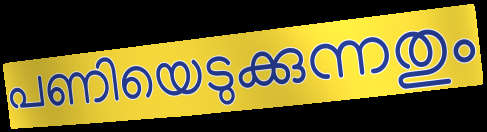
പണിയെടുക്കുന്നതും